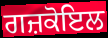
ਗਜ਼ਕੋਇਲ